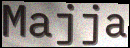
Majja